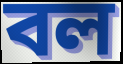
বল